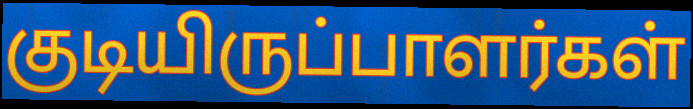
குடியிருப்பாளர்கள்